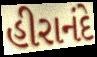
હીરાનંદે